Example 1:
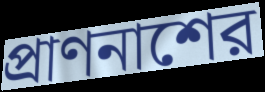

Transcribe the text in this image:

প্রাণনাশের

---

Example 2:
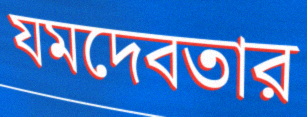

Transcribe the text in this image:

যমদেবতার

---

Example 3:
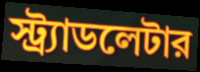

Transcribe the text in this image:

স্ট্র্যাডলেটার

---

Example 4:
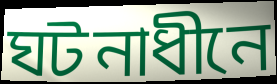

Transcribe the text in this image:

ঘটনাধীনে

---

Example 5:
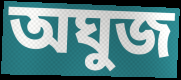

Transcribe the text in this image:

অঘুজ